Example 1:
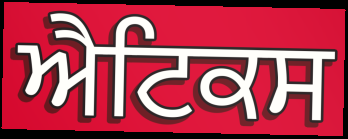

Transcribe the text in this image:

ਐਟਿਕਸ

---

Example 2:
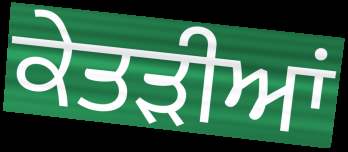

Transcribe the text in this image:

ਕੇਤੜੀਆਂ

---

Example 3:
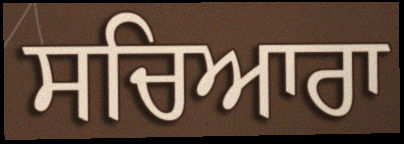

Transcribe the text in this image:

ਸਚਿਆਰਾ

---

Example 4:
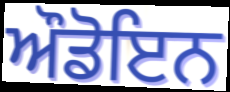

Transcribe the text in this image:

ਔਡੋਇਨ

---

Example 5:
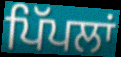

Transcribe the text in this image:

ਪਿੱਪਲਾਂ